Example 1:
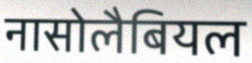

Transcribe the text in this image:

नासोलैबियल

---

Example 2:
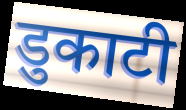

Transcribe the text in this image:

डुकाटी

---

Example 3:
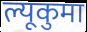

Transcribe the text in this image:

ल्यूकुमा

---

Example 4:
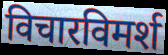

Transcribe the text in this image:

विचारविमर्श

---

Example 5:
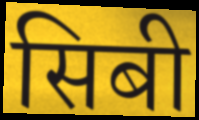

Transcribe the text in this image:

सिबी